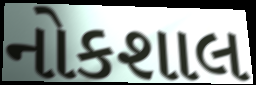
નોકશાલ